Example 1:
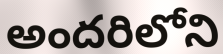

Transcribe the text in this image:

అందరిలోని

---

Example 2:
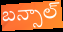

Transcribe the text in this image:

బన్సాల్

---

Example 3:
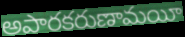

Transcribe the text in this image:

అపారకరుణామయీ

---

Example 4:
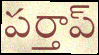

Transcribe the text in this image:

పర్తాప్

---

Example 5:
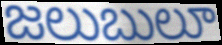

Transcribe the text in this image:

జలుబులూ